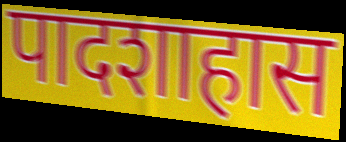
पादशाहास